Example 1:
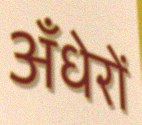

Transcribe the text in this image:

अँधेरों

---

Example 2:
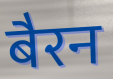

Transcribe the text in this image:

बैरन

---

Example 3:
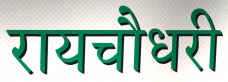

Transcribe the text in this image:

रायचौधरी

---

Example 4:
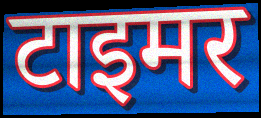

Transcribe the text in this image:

टाइमर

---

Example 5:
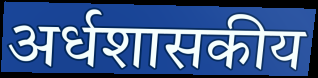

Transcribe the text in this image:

अर्धशासकीय